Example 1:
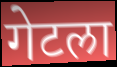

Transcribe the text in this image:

गेटला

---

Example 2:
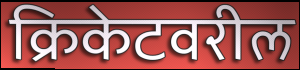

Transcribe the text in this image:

क्रिकेटवरील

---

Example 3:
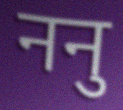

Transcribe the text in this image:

ननु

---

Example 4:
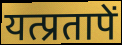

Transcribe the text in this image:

यत्प्रतापें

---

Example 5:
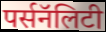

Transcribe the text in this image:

पर्सनॅलिटी